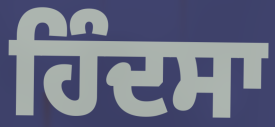
ਹਿੰਦਸਾ